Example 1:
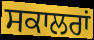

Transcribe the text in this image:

ਸਕਾਲਰਾਂ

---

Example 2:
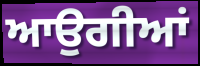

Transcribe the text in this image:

ਆਉਗੀਆਂ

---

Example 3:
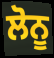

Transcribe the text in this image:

ਲੋਨੂ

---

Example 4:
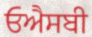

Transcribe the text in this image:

ਓਐਸਬੀ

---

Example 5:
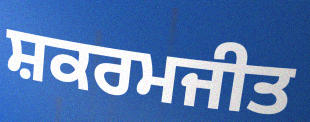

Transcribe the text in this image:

ਸ਼ਕਰਮਜੀਤ